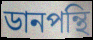
ডানপন্থি